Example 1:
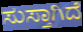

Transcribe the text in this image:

ಸುಸ್ತಾಗಿದೆ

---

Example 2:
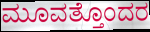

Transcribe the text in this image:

ಮೂವತ್ತೊಂದರ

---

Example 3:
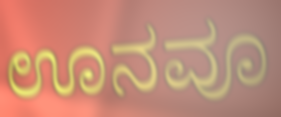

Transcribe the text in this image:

ಊನವೂ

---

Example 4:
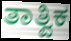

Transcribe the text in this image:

ತಾತ್ವಿಕ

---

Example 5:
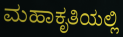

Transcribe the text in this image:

ಮಹಾಕೃತಿಯಲ್ಲಿ